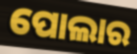
ପୋଲାର